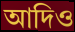
আদিও